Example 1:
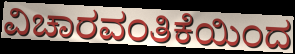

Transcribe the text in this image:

ವಿಚಾರವಂತಿಕೆಯಿಂದ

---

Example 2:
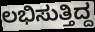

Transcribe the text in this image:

ಲಭಿಸುತ್ತಿದ್ದ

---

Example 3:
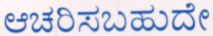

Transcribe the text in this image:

ಆಚರಿಸಬಹುದೇ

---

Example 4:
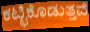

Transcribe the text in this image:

ಕಟ್ಟಿಕೊಡುತ್ತವೆ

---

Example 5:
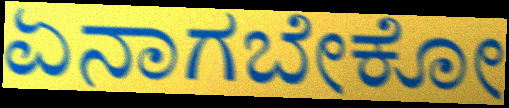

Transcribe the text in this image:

ಏನಾಗಬೇಕೋ